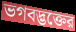
ভগবদ্ভক্তের